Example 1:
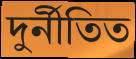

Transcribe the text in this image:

দুৰ্নীতিত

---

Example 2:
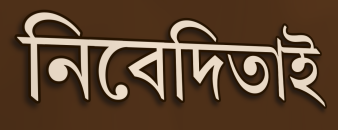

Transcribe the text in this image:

নিবেদিতাই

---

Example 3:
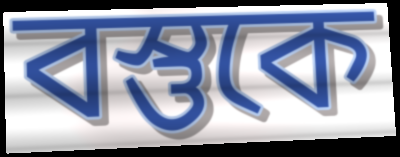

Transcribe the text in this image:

বস্তুকে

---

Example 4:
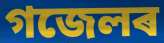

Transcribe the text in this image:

গজেলৰ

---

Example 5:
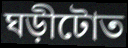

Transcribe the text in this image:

ঘড়ীটোত